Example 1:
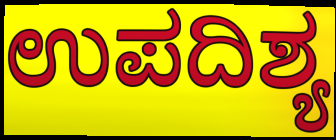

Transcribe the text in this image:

ಉಪದಿಶ್ಯ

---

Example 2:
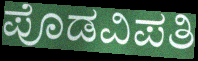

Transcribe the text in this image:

ಪೊಡವಿಪತಿ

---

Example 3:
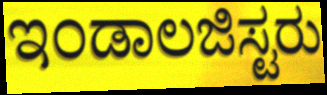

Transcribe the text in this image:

ಇಂಡಾಲಜಿಸ್ಟರು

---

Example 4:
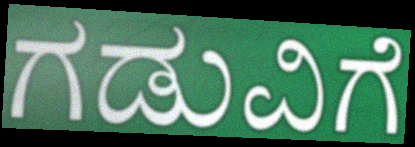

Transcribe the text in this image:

ಗಡುವಿಗೆ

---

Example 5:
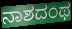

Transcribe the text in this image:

ನಾಶದಂಥ